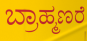
ಬ್ರಾಹ್ಮಣರೆ